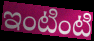
ఇంటింటి